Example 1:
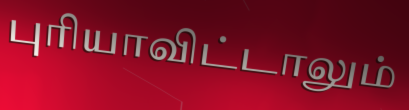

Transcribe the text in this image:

புரியாவிட்டாலும்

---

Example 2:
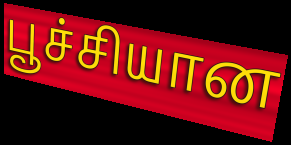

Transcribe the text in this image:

பூச்சியான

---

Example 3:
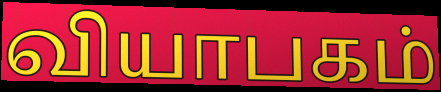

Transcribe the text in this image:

வியாபகம்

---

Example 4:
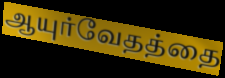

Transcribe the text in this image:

ஆயுர்வேதத்தை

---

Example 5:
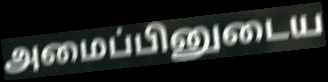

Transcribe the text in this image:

அமைப்பினுடைய